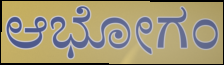
ಆಭೋಗಂ